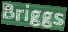
Briggs